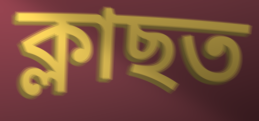
ক্লাছত